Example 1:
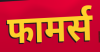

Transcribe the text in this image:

फामर्स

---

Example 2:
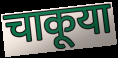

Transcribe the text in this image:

चाकूया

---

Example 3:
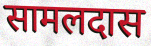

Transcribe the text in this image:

सामलदास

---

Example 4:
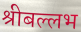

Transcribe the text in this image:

श्रीबल्लभ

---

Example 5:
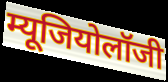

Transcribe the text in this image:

म्यूजियोलॉजी